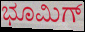
ಭೂಮಿಗ್